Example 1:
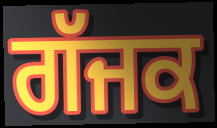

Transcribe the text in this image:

ਗੱਜਕ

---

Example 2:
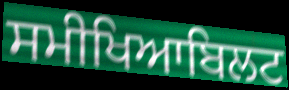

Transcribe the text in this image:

ਸਮੀਖਿਆਬਿਲਟ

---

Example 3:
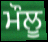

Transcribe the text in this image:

ਮੌਲੂ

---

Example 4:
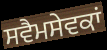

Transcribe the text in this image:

ਸਵੈਮਸੇਵਕਾਂ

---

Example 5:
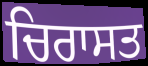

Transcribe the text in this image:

ਚਿਰਾਸਤ